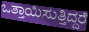
ಒತ್ತಾಯಿಸುತ್ತಿದ್ದರೆ